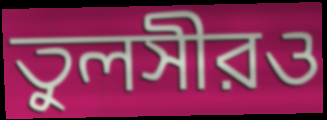
তুলসীরও